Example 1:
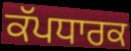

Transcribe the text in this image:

ਕੱਪਧਾਰਕ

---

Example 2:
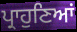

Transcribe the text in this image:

ਪ੍ਰਾਹੁਣਿਆਂ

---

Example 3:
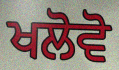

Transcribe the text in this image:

ਖਲੋਵੋ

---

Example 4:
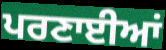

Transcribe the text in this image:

ਪਰਣਾਈਆਂ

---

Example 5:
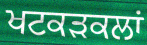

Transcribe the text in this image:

ਖਟਕੜਕਲਾਂ